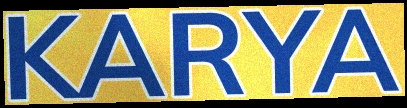
KARYA